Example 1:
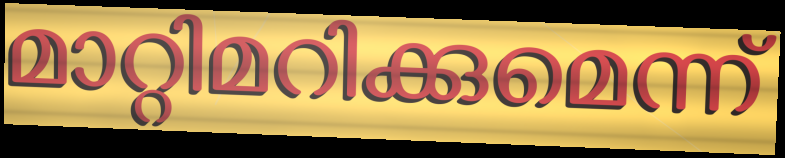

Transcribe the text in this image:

മാറ്റിമറിക്കുമെന്ന്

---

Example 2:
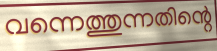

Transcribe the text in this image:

വന്നെത്തുന്നതിന്റെ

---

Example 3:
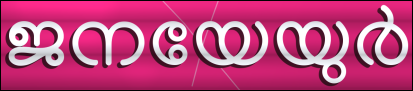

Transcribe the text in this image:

ജനയേയുർ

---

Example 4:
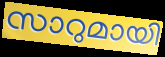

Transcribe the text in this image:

സാറുമായി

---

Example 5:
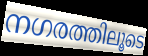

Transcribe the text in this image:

നഗരത്തിലൂടെ